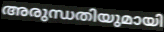
അരുന്ധതിയുമായി